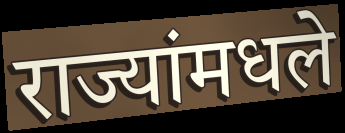
राज्यांमधले